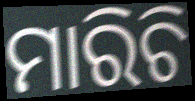
ମାରିଚି